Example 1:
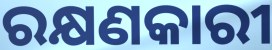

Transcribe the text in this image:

ରକ୍ଷଣକାରୀ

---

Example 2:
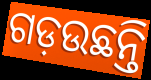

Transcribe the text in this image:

ଗଡ଼ଉଛନ୍ତି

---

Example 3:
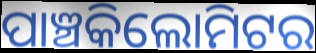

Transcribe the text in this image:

ପାଞ୍ଚକିଲୋମିଟର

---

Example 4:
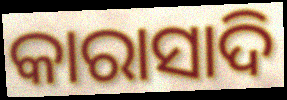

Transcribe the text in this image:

କାରାସାଦି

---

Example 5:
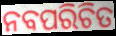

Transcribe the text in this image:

ନବପରିଚିତ